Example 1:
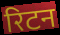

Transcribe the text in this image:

रिटन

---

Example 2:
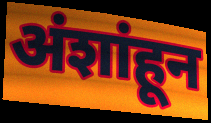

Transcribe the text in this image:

अंशांहून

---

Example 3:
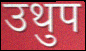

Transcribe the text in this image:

उथुप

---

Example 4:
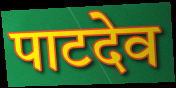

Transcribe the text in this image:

पाटदेव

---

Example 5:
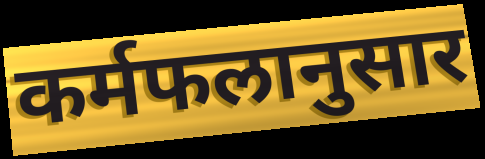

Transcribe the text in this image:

कर्मफलानुसार